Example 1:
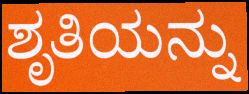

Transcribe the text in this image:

ಶೃತಿಯನ್ನು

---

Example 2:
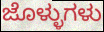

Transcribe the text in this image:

ಜೊಳ್ಳುಗಳು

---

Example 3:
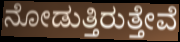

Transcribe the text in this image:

ನೋಡುತ್ತಿರುತ್ತೇವೆ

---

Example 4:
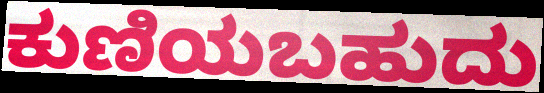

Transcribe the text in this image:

ಕುಣಿಯಬಹುದು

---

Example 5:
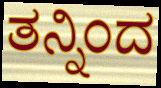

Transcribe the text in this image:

ತನ್ನಿಂದ